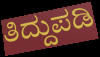
ತಿದ್ದುಪಡಿ